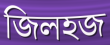
জিলহজ